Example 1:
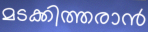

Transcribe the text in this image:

മടക്കിത്തരാൻ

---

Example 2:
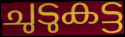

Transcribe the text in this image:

ചുടുകട്ട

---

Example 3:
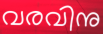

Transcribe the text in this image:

വരവിനു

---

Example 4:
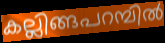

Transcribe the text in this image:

കല്ലിങ്ങപറമ്പിൽ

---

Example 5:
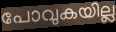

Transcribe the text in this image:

പോവുകയില്ല